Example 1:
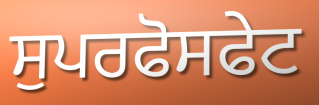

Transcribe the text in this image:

ਸੁਪਰਫੋਸਫੇਟ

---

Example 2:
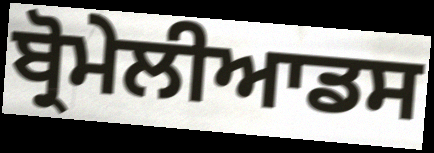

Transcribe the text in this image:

ਬ੍ਰੋਮੇਲੀਆਡਸ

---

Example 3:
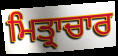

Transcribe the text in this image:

ਮਿਤ੍ਰਾਚਾਰ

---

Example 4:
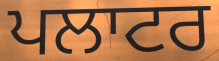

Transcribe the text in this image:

ਪਲਾਟਰ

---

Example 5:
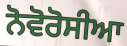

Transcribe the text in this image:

ਨੋਵੋਰੋਸੀਆ